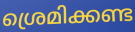
ശ്രെമിക്കണ്ട